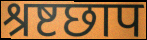
श्रष्टछाप